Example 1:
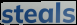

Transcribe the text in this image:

steals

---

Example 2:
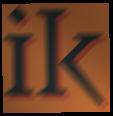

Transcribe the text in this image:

ik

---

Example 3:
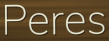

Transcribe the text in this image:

Peres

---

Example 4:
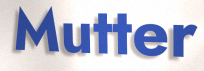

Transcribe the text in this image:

Mutter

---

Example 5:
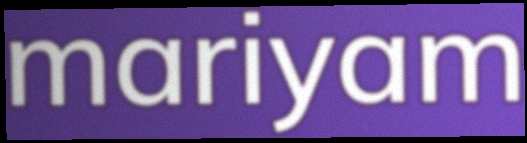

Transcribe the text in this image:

mariyam